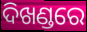
ଦିଖଣ୍ଡରେ